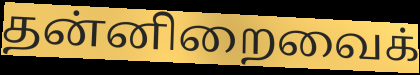
தன்னிறைவைக்